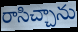
రాసిచ్చాను